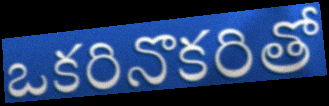
ఒకరినొకరితో